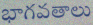
భాగవతాలు